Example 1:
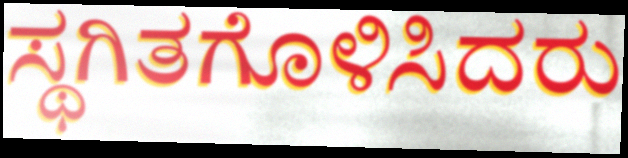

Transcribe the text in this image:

ಸ್ಥಗಿತಗೊಳಿಸಿದರು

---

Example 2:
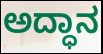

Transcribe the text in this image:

ಅದ್ಧಾನ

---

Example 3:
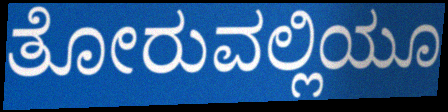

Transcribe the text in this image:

ತೋರುವಲ್ಲಿಯೂ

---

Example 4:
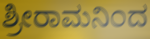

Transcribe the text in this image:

ಶ್ರೀರಾಮನಿಂದ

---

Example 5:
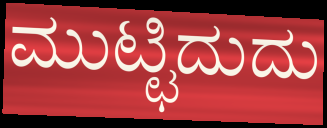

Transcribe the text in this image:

ಮುಟ್ಟಿದುದು